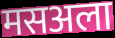
मसअला